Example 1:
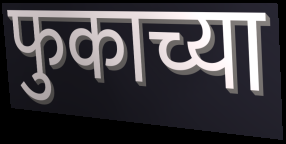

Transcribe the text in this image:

फुकाच्या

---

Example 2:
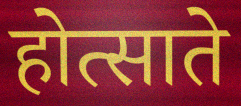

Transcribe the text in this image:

होत्साते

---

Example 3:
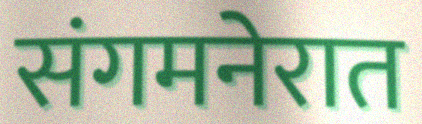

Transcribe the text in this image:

संगमनेरात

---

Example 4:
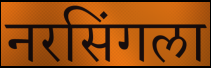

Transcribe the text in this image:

नरसिंगला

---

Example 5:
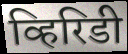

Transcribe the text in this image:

व्हिरिडी